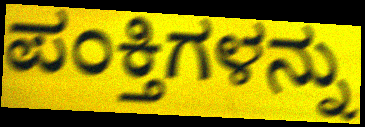
ಪಂಕ್ತಿಗಳನ್ನು